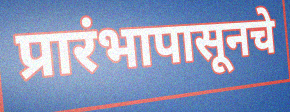
प्रारंभापासूनचे